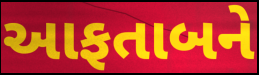
આફતાબને